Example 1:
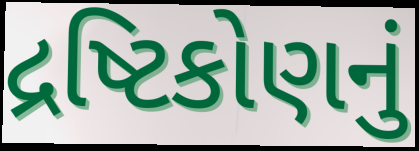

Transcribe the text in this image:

દ્રષ્ટિકોણનું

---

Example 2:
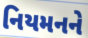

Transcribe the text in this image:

નિયમનને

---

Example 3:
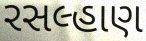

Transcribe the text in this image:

રસલ્હાણ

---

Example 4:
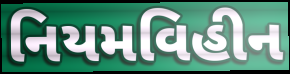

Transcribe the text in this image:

નિયમવિહીન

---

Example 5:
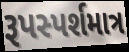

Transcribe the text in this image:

રૂપસ્પર્શમાત્ર